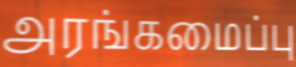
அரங்கமைப்பு